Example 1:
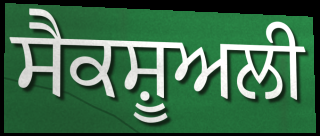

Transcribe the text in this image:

ਸੈਕਸ਼ੂਅਲੀ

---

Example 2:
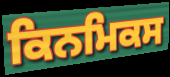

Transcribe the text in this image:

ਕਿਨਮਿਕਸ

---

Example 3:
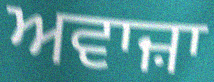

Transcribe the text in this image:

ਅਵਾਜ਼ਾ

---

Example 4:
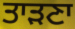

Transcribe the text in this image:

ਤਾੜਣਾ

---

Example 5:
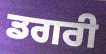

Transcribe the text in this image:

ਡਗਰੀ